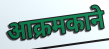
आक्रमकाने